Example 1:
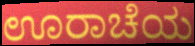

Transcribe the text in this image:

ಊರಾಚೆಯ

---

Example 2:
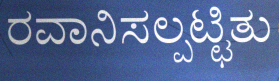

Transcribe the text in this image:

ರವಾನಿಸಲ್ಪಟ್ಟಿತು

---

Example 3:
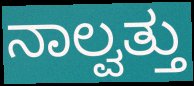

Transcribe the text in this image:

ನಾಲ್ವತ್ತು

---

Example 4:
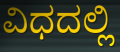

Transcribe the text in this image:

ವಿಧದಲ್ಲಿ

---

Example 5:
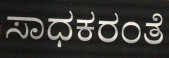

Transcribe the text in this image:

ಸಾಧಕರಂತೆ